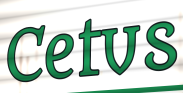
Cetus